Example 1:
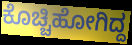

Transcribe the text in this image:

ಕೊಚ್ಚಿಹೋಗಿದ್ದ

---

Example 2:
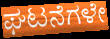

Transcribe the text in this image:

ಘಟನೆಗಳೇ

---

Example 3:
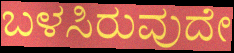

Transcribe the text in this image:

ಬಳಸಿರುವುದೇ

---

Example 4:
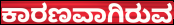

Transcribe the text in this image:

ಕಾರಣವಾಗಿರುವ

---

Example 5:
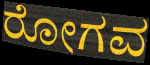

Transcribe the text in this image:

ರೋಗವ